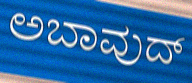
ಅಬಾವುದ್